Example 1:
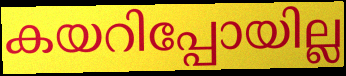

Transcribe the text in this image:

കയറിപ്പോയില്ല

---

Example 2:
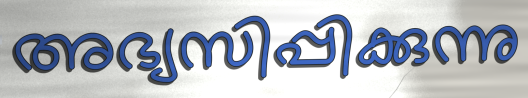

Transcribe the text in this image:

അഭ്യസിപ്പിക്കുന്നു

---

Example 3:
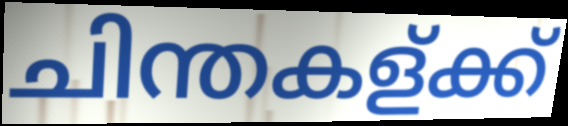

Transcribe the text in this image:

ചിന്തകള്ക്ക്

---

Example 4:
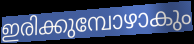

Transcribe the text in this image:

ഇരിക്കുമ്പോഴാകും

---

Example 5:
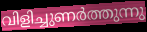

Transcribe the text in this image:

വിളിച്ചുണർത്തുന്നു